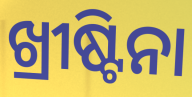
ଖ୍ରୀଷ୍ଟିନା